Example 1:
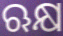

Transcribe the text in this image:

ଋକ୍ଷ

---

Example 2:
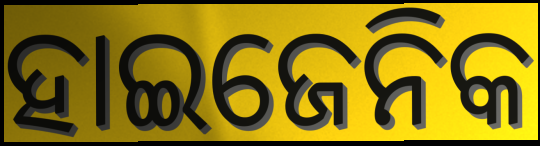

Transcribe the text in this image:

ହାଇଜେନିକ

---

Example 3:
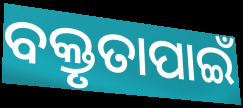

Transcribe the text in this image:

ବକ୍ତୃତାପାଇଁ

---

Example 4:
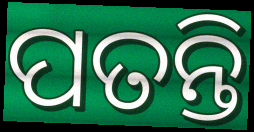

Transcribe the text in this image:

ପତନ୍ତି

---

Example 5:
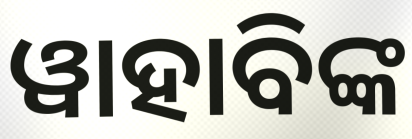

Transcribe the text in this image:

ୱାହାବିଙ୍କ